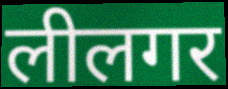
लीलगर